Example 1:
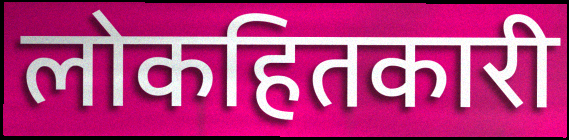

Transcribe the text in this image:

लोकहितकारी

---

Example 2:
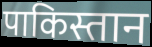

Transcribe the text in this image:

पाकिस्तान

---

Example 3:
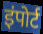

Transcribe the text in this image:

इंपोर्ट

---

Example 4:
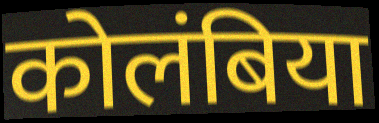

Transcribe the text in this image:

कोलंबिया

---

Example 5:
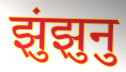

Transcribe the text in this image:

झुंझुनु